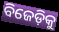
ବିଜେଡ଼ିକୁ